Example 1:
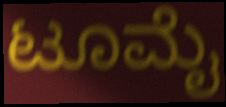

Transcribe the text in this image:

ಟೂಮೈ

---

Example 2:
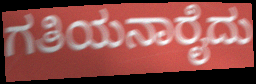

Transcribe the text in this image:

ಗತಿಯನಾರೈದು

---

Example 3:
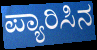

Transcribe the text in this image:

ಪ್ಯಾರಿಸಿನ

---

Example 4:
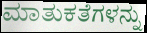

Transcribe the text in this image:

ಮಾತುಕತೆಗಳನ್ನು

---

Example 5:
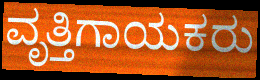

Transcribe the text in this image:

ವೃತ್ತಿಗಾಯಕರು